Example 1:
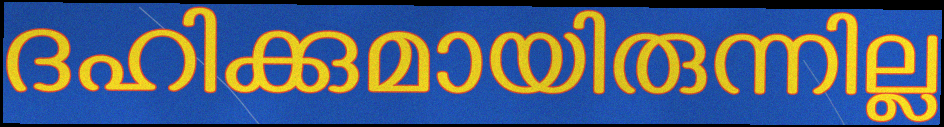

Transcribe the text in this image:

ദഹിക്കുമായിരുന്നില്ല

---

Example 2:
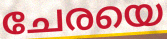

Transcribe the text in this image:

ചേരയെ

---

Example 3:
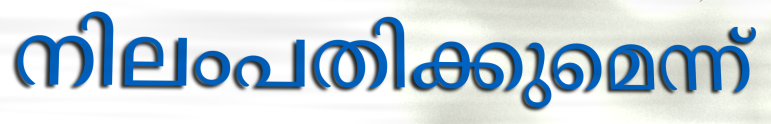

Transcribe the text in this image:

നിലംപതിക്കുമെന്ന്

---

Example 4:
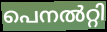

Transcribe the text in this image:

പെനൽറ്റി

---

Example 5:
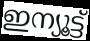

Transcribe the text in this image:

ഇന്യൂട്ട്